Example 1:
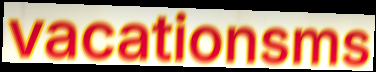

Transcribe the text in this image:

vacationsms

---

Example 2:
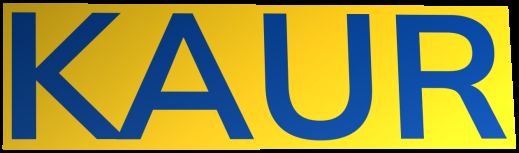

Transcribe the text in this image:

KAUR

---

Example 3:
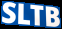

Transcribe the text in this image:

SLTB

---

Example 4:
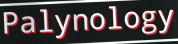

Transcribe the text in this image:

Palynology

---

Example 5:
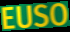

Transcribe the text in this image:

EUSO